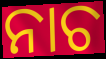
ନାଚ